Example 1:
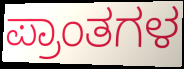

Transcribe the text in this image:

ಪ್ರಾಂತಗಳ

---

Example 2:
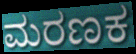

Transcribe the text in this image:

ಮರಣಕ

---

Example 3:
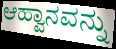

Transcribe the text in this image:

ಆಹ್ವಾನವನ್ನು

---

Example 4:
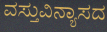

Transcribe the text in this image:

ವಸ್ತುವಿನ್ಯಾಸದ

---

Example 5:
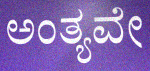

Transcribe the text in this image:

ಅಂತ್ಯವೇ